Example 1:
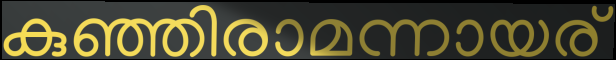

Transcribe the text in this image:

കുഞ്ഞിരാമന്നായര്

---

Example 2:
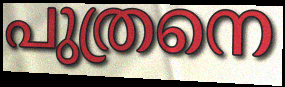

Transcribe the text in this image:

പുത്രനെ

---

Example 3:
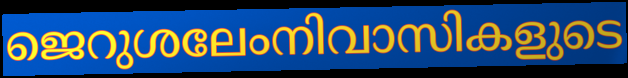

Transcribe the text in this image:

ജെറുശലേംനിവാസികളുടെ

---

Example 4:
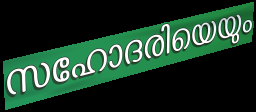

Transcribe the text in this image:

സഹോദരിയെയും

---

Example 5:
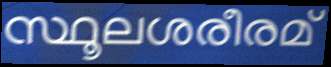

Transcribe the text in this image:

സ്ഥൂലശരീരമ്